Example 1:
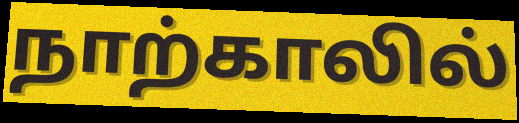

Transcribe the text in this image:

நாற்காலில்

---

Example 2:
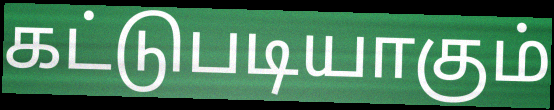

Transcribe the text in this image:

கட்டுபடியாகும்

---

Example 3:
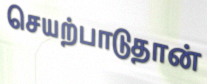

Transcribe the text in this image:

செயற்பாடுதான்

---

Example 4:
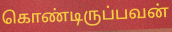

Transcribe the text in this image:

கொண்டிருப்பவன்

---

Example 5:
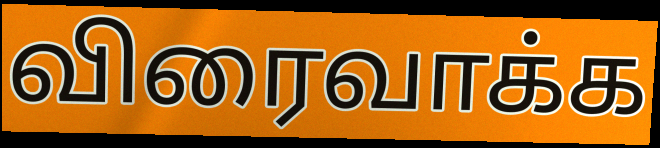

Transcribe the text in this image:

விரைவாக்க